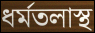
ধর্মতলাস্থ